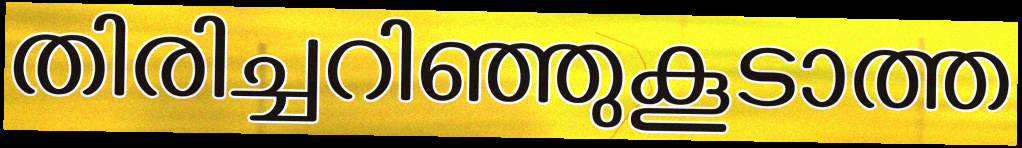
തിരിച്ചറിഞ്ഞുകൂടാത്ത